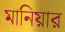
মানিয়ার